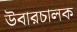
উবারচালক